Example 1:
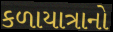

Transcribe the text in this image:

કળાયાત્રાનો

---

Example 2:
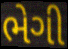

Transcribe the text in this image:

ભેગી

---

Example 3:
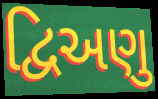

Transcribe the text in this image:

દ્વિઅણુ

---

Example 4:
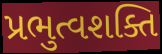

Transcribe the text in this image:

પ્રભુત્વશક્તિ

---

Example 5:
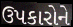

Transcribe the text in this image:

ઉપકારોને